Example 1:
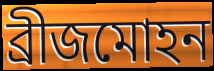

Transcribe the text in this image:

ব্রীজমোহন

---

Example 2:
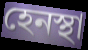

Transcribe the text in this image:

হেনস্থা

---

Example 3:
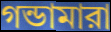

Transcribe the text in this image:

গন্ডামারা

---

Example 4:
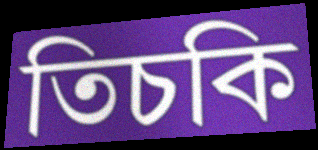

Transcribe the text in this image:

তিচকি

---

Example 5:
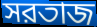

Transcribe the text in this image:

সরতাজ